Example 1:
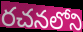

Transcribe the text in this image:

రచనలోని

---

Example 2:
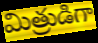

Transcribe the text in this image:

మిత్రుడిగా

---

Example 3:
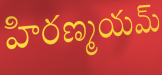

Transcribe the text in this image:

హిరణ్మయమ్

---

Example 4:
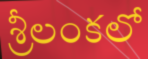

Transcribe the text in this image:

శ్రీలంకలో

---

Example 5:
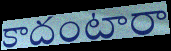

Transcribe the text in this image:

కాదంటారా